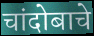
चांदोबाचे